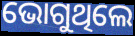
ଭୋଗୁଥିଲେ